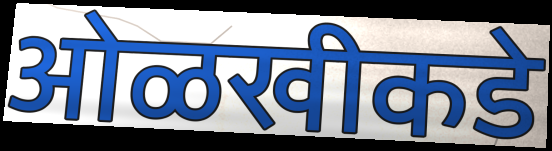
ओळखीकडे